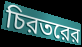
চিরতরের